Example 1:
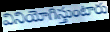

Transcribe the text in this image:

వినియోగిస్తుంటారు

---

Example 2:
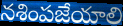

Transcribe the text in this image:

నశింపజేయాలి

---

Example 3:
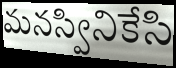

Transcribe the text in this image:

మనస్వినికేసి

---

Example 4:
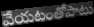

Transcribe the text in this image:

వేయటంతోపాటు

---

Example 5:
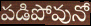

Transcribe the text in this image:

పడిపోవునో